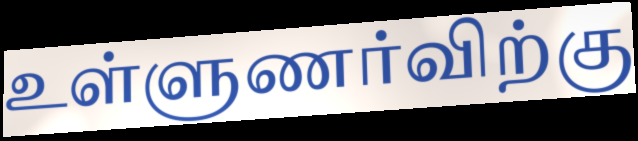
உள்ளுணர்விற்கு